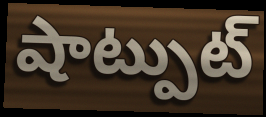
షాట్పుట్